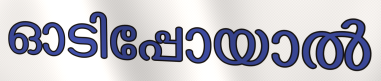
ഓടിപ്പോയാൽ